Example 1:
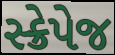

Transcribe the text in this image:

સ્ક્રેપેજ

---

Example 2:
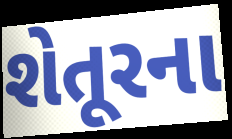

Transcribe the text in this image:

શેતૂરના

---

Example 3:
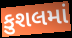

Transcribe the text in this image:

કુશલમાં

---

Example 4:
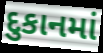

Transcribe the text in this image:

દુકાનમાં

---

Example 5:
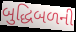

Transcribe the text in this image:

બુદ્ધિબળની